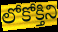
లోకోక్తిని